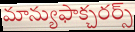
మాన్యుఫాక్చరర్స్